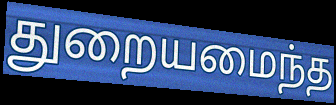
துறையமைந்த